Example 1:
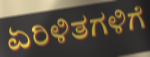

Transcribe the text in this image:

ಏರಿಳಿತಗಳಿಗೆ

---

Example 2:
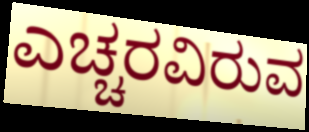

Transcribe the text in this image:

ಎಚ್ಚರವಿರುವ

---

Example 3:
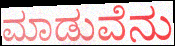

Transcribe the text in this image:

ಮಾಡುವೆನು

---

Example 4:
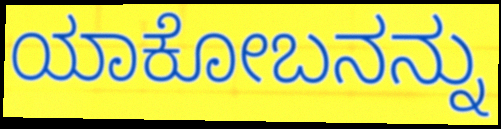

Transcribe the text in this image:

ಯಾಕೋಬನನ್ನು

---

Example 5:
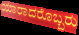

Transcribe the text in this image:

ಯಾರಾದರೊಬ್ಬರು